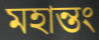
মহান্তং